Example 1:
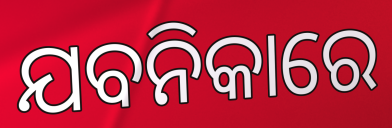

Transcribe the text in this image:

ଯବନିକାରେ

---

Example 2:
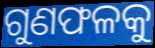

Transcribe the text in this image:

ଗୁଣଫଳକୁ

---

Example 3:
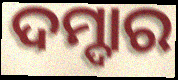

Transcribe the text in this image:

ଦମ୍ଦାର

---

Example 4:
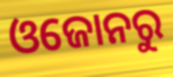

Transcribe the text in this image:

ଓଜୋନରୁ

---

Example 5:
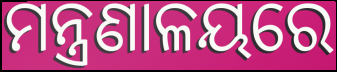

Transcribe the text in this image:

ମନ୍ତ୍ରଣାଳୟରେ